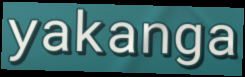
yakanga